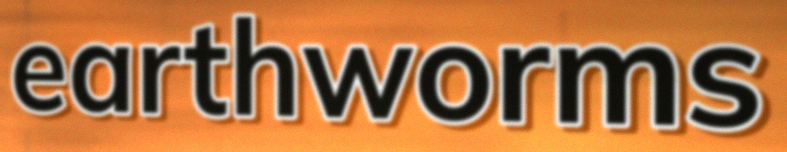
earthworms